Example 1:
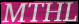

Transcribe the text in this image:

MTHL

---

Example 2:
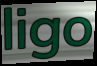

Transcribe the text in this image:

ligo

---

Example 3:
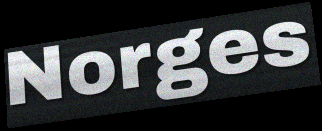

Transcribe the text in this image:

Norges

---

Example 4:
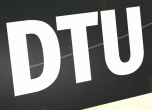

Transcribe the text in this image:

DTU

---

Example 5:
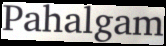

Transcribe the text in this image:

Pahalgam